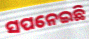
ସପନେଇଛି